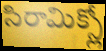
సిరామిక్స్లో